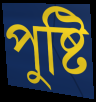
পুষ্টি